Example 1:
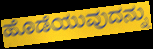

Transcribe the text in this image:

ಹೊಡೆಯುವುದನ್ನು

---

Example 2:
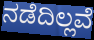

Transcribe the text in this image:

ನಡೆದಿಲ್ಲವೆ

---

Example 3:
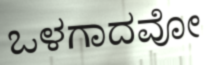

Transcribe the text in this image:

ಒಳಗಾದವೋ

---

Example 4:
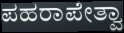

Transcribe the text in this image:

ಪಹರಾಪೇತ್ವಾ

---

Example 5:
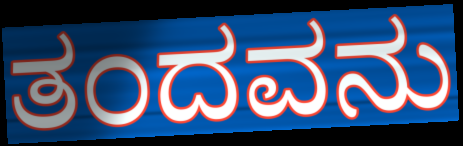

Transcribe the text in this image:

ತಂದವನು